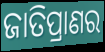
ଜାତିପ୍ରାଣର